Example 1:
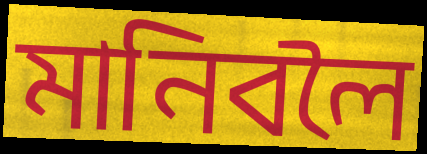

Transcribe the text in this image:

মানিবলৈ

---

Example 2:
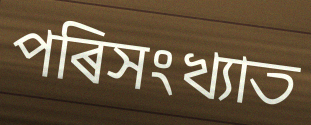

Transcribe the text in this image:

পৰিসংখ্যাত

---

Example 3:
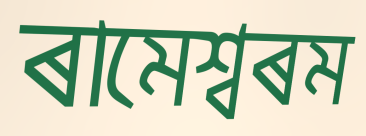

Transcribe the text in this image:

ৰামেশ্বৰম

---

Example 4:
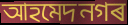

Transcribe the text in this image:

আহমেদনগৰ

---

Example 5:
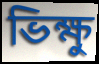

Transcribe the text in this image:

ভিক্ষু